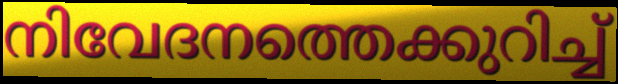
നിവേദനത്തെക്കുറിച്ച്